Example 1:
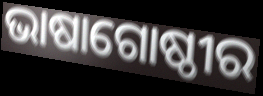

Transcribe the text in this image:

ଭାଷାଗୋଷ୍ଠୀର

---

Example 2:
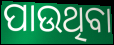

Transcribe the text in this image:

ପାଉଥିବା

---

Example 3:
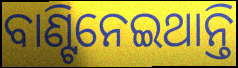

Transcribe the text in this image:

ବାଣ୍ଟିନେଇଥାନ୍ତି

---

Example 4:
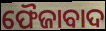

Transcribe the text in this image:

ଫୈଜାବାଦ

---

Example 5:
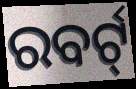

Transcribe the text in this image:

ରବର୍ଟ୍